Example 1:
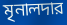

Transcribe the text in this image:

মৃনালদার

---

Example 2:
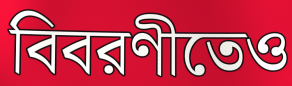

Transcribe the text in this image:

বিবরণীতেও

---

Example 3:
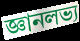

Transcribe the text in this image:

জ্ঞানলভ্য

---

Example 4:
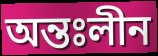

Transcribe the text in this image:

অন্তঃলীন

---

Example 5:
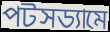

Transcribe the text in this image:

পটসড্যামে